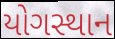
યોગસ્થાન